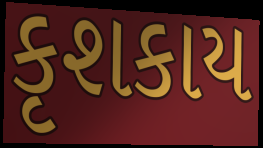
કૃશકાય